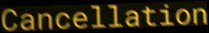
Cancellation